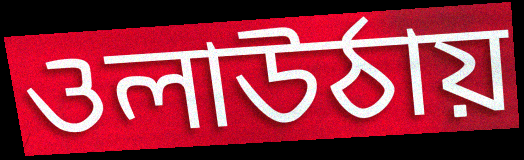
ওলাউঠায়